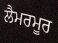
ਲੈਮਰਮੂਰ